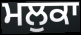
ਮਲੁਕਾ